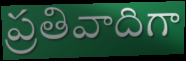
ప్రతివాదిగా